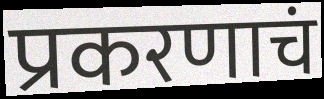
प्रकरणाचं